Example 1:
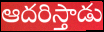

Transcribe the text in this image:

ఆదరిస్తాడు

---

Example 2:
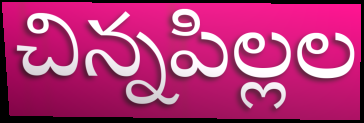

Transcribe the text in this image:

చిన్నపిల్లల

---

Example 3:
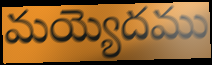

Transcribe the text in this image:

మయ్యెదము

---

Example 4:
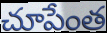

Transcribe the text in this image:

చూపేంత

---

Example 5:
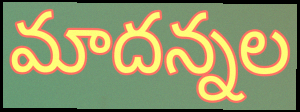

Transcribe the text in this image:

మాదన్నల